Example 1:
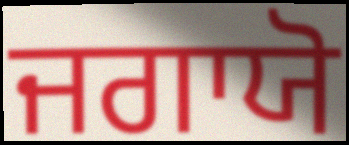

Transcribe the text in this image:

ਜਗਾਯੋ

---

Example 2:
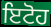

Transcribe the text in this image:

ਇਟੋਹ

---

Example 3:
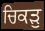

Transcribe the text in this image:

ਚਿਕੜੁ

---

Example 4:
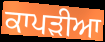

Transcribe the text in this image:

ਕਾਪੜੀਆ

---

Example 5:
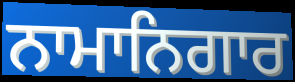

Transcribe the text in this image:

ਨਾਮਾਨਿਗਾਰ